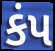
કંપ